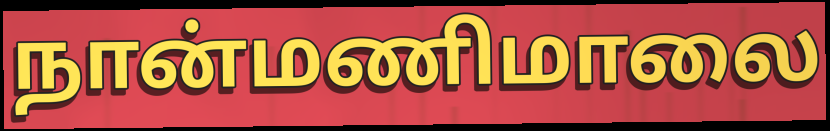
நான்மணிமாலை